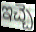
ఇచ్చె